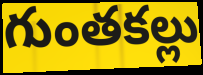
గుంతకల్లు